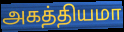
அகத்தியமா